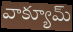
వాక్యూమ్